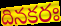
దినకరః